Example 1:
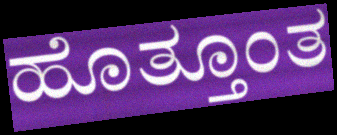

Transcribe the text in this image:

ಹೊತ್ತೂಂತ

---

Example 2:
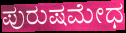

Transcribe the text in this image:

ಪುರುಷಮೇಧ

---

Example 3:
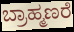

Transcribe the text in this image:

ಬ್ರಾಹ್ಮಣರೆ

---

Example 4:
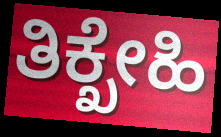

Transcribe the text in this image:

ತಿಕ್ಖೇಹಿ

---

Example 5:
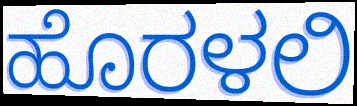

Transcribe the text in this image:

ಹೊರಳಲಿ